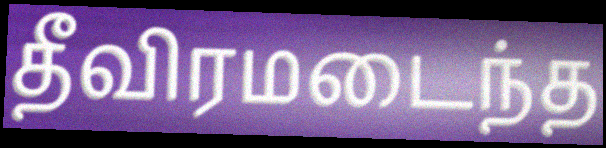
தீவிரமடைந்த